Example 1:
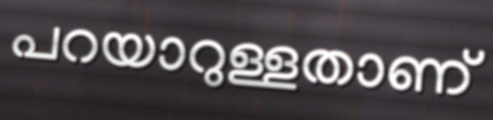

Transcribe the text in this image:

പറയാറുള്ളതാണ്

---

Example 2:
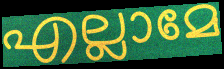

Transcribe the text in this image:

എല്ലാമേ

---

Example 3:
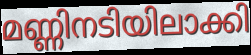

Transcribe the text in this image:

മണ്ണിനടിയിലാക്കി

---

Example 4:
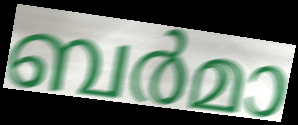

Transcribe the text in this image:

ബർമാ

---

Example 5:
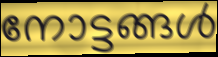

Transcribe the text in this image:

നോട്ടങ്ങൾ